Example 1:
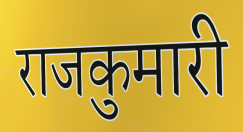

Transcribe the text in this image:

राजकुमारी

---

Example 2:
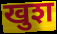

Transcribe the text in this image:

खुश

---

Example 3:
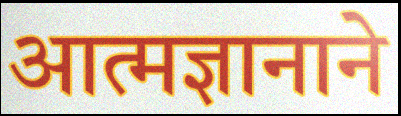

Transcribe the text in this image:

आत्मज्ञानाने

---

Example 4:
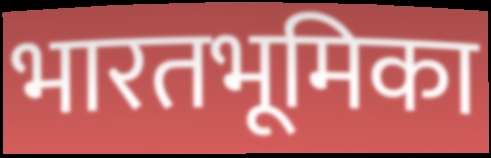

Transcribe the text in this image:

भारतभूमिका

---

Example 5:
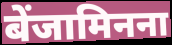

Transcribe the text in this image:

बेंजामिनना